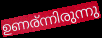
ഉണര്ന്നിരുന്നു